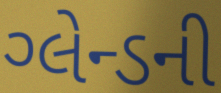
ગ્લેન્ડની